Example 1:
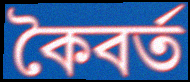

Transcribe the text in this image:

কৈবর্ত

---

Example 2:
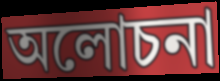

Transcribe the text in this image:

অলোচনা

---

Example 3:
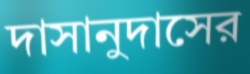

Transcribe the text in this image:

দাসানুদাসের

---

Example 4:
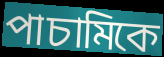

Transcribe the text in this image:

পাচামিকে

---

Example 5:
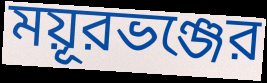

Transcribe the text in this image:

ময়ূরভঞ্জের